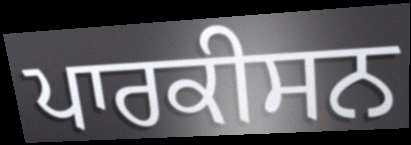
ਪਾਰਕੀਸਨ